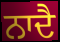
ਨਾਦੈ